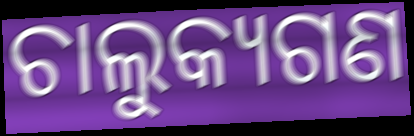
ଚାଲୁକ୍ୟଗଣ